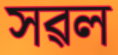
সৱল